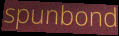
spunbond